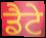
ਡੈਟੇ